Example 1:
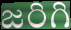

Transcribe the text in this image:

జరిగి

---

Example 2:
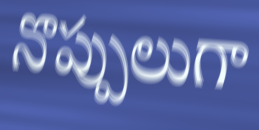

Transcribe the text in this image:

నొప్పులుగా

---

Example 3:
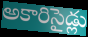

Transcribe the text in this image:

అకారిసైడ్లు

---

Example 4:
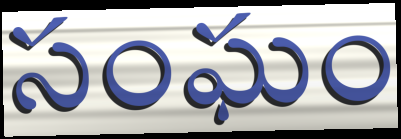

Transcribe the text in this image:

సంఘం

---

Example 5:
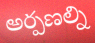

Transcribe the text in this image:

అర్పణల్ని